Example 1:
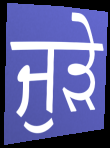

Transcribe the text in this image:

ਜੁੜੇ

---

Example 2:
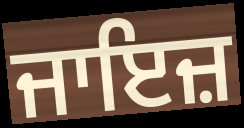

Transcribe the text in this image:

ਜਾਇਜ਼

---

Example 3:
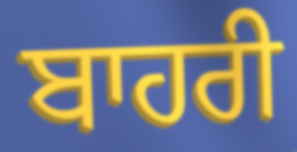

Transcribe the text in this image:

ਬਾਹਰੀ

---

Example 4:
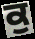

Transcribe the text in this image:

ਕੁ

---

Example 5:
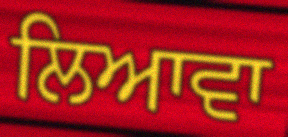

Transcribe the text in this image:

ਲਿਆਵਾ